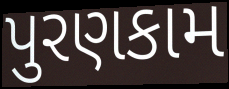
પુરણકામ